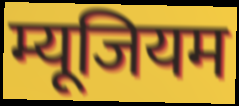
म्यूजियम